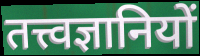
तत्त्वज्ञानियों